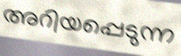
അറിയപ്പെടുന്ന